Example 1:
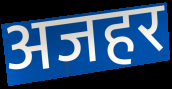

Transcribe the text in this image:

अजहर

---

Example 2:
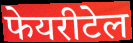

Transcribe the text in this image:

फेयरीटेल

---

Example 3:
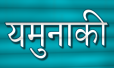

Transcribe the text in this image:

यमुनाकी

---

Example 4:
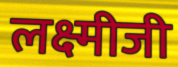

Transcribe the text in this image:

लक्ष्मीजी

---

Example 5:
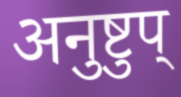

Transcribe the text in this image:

अनुष्टुप्